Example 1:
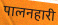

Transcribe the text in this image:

पालनहारी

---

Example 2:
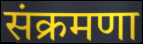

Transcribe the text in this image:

संक्रमणा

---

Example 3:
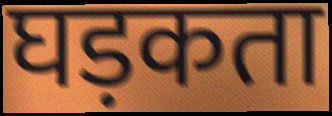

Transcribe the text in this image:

घड़कता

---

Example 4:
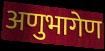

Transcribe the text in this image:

अणुभागेण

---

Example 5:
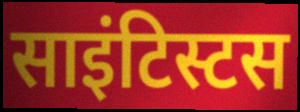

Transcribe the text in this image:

साइंटिस्टस